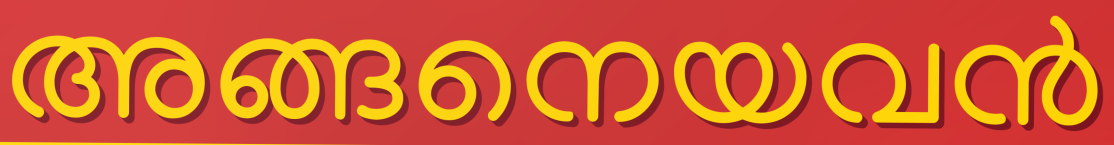
അങ്ങനെയവൻ